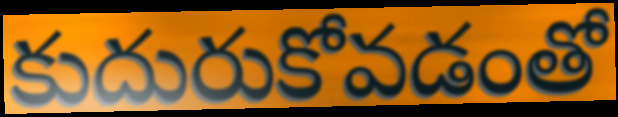
కుదురుకోవడంతో